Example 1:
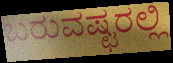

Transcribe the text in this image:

ಬರುವಷ್ಟರಲ್ಲಿ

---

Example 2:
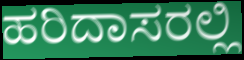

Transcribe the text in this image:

ಹರಿದಾಸರಲ್ಲಿ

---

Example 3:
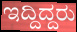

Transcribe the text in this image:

ಇದ್ದಿದ್ದರು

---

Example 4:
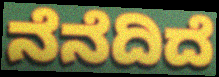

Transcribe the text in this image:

ನೆನೆದಿದೆ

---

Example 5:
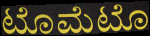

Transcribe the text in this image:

ಟೊಮೆಟೊ